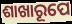
ଶାଖାରୂପେ